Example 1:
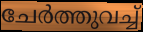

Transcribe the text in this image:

ചേർത്തുവച്ച്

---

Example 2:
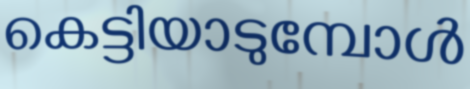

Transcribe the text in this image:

കെട്ടിയാടുമ്പോൾ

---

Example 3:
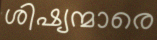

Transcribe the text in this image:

ശിഷ്യന്മാരെ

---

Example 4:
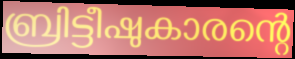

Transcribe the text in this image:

ബ്രിട്ടീഷുകാരന്റെ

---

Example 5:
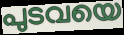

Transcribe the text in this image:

പുടവയെ